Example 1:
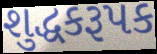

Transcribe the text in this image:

શુદ્ધકરૂપક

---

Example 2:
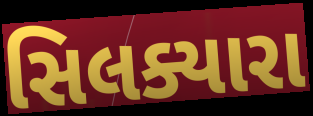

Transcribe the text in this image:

સિલક્યારા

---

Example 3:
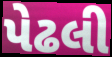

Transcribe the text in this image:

પેઢલી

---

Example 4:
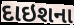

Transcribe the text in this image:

દાઇશના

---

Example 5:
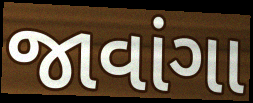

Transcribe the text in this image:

જાવાંગા